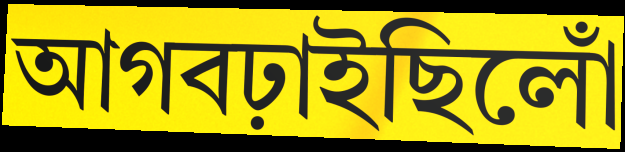
আগবঢ়াইছিলোঁ